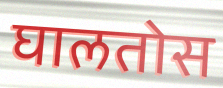
घालतोस